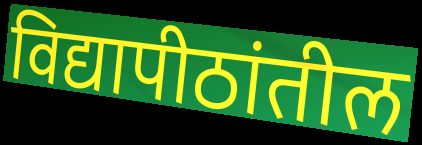
विद्यापीठांतील